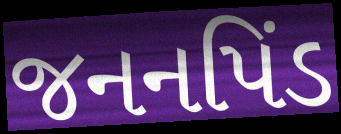
જનનપિંડ